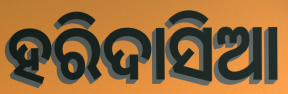
ହରିଦାସିଆ